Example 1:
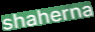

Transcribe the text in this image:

shaherna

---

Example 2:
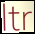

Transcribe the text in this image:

ltr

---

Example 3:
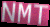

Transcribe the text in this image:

NMT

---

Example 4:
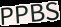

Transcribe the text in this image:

PPBS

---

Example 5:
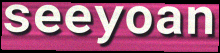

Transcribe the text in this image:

seeyoan